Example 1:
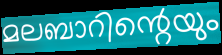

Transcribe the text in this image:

മലബാറിന്റെയും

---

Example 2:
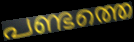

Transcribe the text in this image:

പണ്ടത്തെ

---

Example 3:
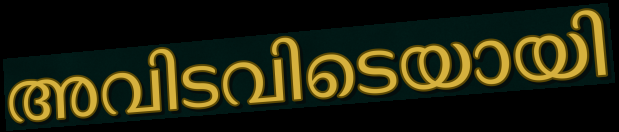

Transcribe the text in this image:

അവിടവിടെയായി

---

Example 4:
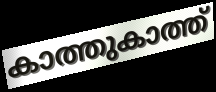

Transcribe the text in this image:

കാത്തുകാത്ത്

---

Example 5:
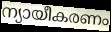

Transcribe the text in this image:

ന്യായീകരണം